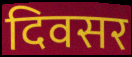
दिवसर